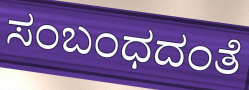
ಸಂಬಂಧದಂತೆ